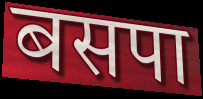
बसपा